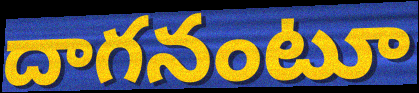
దాగనంటూ